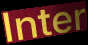
Inter